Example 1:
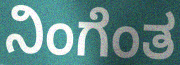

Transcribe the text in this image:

ನಿಂಗೆಂತ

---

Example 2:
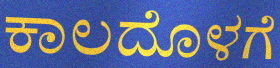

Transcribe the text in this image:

ಕಾಲದೊಳಗೆ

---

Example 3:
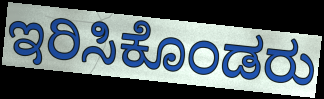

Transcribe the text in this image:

ಇರಿಸಿಕೊಂಡರು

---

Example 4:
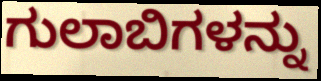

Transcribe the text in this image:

ಗುಲಾಬಿಗಳನ್ನು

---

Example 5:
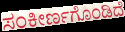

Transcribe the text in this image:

ಸಂಕೀರ್ಣಗೊಂಡಿದೆ